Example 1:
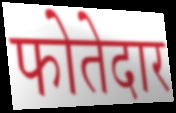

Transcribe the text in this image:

फोतेदार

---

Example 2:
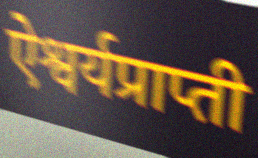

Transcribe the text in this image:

ऐश्वर्यप्राप्ती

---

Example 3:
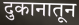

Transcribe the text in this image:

दुकानातून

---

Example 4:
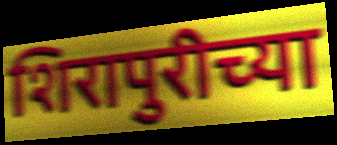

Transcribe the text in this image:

शिरापुरीच्या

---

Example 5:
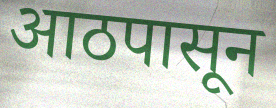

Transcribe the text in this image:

आठपासून